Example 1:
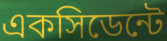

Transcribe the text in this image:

একসিডেন্টে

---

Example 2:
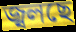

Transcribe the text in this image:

জ্বলছে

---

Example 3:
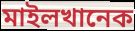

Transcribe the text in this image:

মাইলখানেক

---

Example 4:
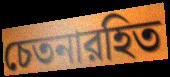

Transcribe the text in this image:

চেতনারহিত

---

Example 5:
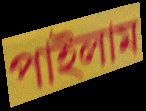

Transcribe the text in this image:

পাইলাম